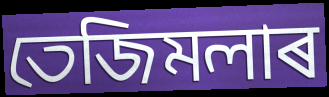
তেজিমলাৰ